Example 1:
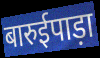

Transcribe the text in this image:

बारुईपाड़ा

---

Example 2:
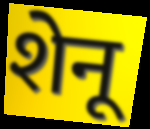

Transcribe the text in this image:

शेनू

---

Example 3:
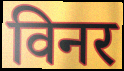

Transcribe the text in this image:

विनर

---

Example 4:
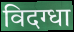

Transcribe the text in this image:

विदग्धा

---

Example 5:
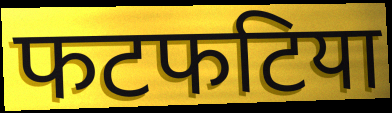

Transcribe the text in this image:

फटफटिया